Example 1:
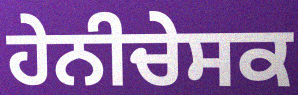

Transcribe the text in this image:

ਹੇਨੀਚੇਸਕ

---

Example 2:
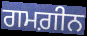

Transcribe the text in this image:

ਗਮਗ਼ੀਨ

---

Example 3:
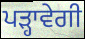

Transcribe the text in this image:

ਪੜ੍ਹਾਵੇਗੀ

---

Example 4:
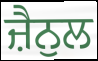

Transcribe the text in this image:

ਜ਼ੈਨੁਲ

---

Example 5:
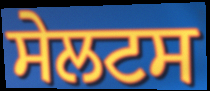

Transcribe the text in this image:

ਸੇਲਟਸ